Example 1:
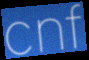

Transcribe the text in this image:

cnf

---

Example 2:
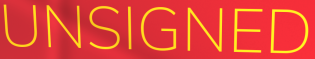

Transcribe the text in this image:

UNSIGNED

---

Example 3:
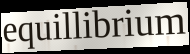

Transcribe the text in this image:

equillibrium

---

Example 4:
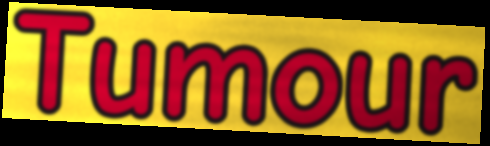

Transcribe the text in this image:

Tumour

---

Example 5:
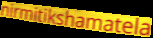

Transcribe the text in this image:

nirmitikshamatela